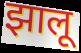
झालू